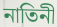
নাতিনী